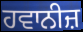
ਹਵਾਨੀਜ਼